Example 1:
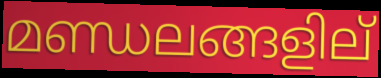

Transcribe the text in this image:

മണ്ഡലങ്ങളില്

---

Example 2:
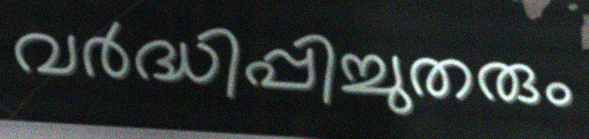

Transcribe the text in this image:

വർദ്ധിപ്പിച്ചുതരും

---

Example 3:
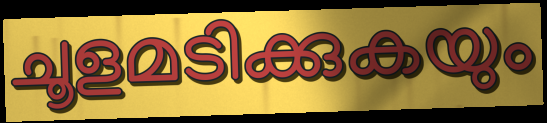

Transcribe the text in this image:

ചൂളമടിക്കുകയും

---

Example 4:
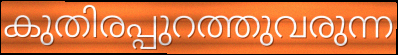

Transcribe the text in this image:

കുതിരപ്പുറത്തുവരുന്ന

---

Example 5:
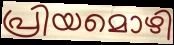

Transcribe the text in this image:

പ്രിയമൊഴി